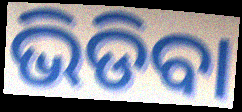
ଭିଡିବା